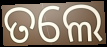
ତଲେ